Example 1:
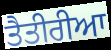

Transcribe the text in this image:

ਤੈਤੀਰੀਆ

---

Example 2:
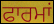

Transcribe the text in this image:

ਫਾਰਮਾਂ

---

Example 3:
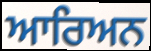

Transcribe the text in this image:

ਆਰਿਅਨ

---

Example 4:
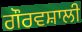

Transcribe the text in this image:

ਗੌਰਵਸ਼ਾਲੀ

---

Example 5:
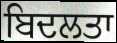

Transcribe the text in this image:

ਬਿਦਲਤਾ